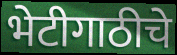
भेटीगाठीचे